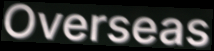
Overseas